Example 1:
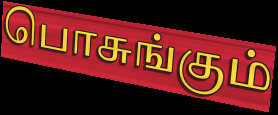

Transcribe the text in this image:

பொசுங்கும்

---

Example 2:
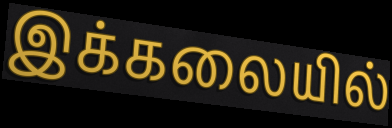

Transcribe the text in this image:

இக்கலையில்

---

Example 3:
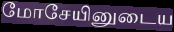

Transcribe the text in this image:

மோசேயினுடைய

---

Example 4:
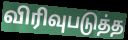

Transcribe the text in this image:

விரிவுபடுத்த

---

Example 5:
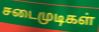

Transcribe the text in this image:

சடைமுடிகள்